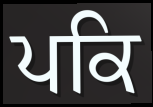
ਪਕਿ